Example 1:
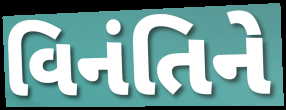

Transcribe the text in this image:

વિનંતિને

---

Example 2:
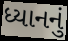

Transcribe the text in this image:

ધ્યાનનું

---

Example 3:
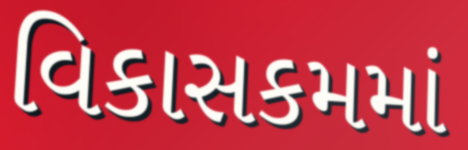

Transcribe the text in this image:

વિકાસકમમાં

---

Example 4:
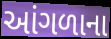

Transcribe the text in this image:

આંગળાના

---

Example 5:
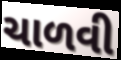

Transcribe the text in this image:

ચાળવી